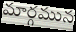
మార్గమున